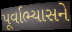
પૂર્વાભ્યાસને